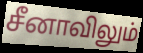
சீனாவிலும்